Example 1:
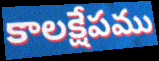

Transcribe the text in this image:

కాలక్షేపము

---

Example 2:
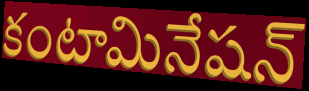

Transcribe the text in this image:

కంటామినేషన్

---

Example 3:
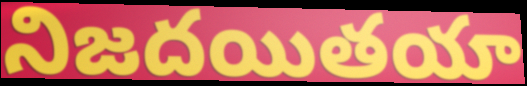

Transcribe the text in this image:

నిజదయితయా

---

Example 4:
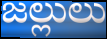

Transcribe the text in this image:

జల్లులు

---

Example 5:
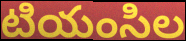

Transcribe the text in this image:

టియంసిల